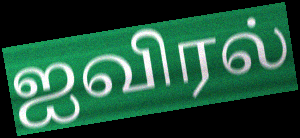
ஐவிரல்